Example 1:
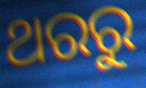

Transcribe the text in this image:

ଥରରୁ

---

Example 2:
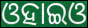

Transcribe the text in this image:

ଓହାଇଓ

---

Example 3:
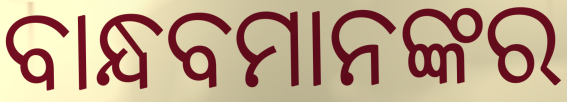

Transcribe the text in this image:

ବାନ୍ଧବମାନଙ୍କର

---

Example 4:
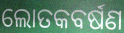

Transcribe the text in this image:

ଲୋତକବର୍ଷଣ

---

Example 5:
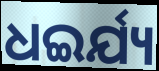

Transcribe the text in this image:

ଧଇର୍ଯ୍ୟ